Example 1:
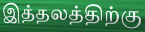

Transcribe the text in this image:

இத்தலத்திற்கு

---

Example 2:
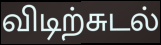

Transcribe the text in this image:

விடிற்சுடல்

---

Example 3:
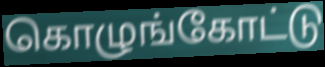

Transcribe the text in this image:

கொழுங்கோட்டு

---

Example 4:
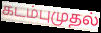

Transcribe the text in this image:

கடம்புமுதல்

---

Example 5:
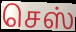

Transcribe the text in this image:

செஸ்